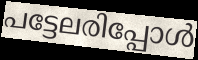
പട്ടേലരിപ്പോൾ